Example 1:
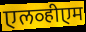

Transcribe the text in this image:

एलव्हीएम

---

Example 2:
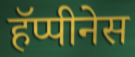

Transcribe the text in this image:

हॅप्पीनेस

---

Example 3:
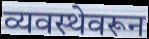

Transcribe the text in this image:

व्यवस्थेवरून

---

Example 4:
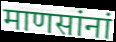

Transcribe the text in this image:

माणसांनां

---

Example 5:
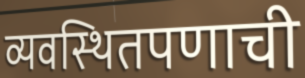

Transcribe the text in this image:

व्यवस्थितपणाची